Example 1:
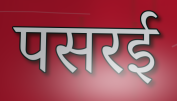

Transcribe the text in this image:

पसरई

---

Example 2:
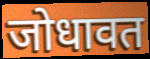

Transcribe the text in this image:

जोधावत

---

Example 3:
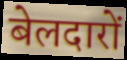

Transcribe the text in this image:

बेलदारों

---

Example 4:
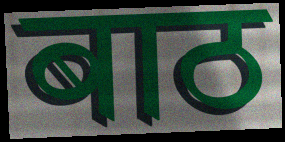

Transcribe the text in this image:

बाठ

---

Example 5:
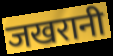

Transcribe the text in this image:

जखरानी